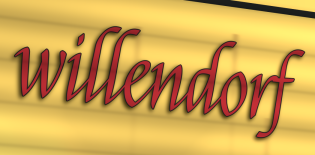
willendorf